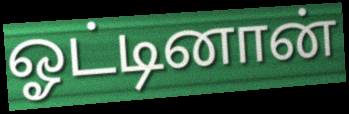
ஓட்டினான்